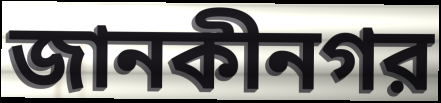
জানকীনগর